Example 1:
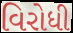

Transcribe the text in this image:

વિરોધી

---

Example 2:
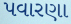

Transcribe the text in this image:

પવારણા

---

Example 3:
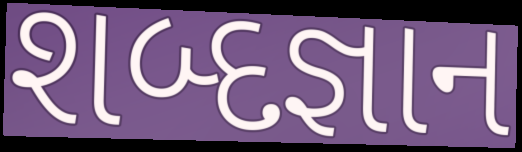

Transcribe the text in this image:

શબ્દજ્ઞાન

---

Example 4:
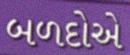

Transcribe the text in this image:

બળદોએ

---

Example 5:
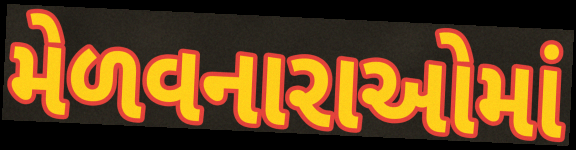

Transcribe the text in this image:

મેળવનારાઓમાં